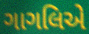
ગાગલિએ